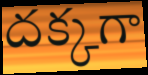
దక్కగా